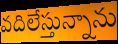
వదిలేస్తున్నాను